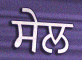
ਸੇਲ